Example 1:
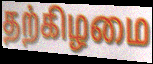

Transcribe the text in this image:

தற்கிழமை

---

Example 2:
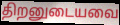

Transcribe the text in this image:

திறனுடையவை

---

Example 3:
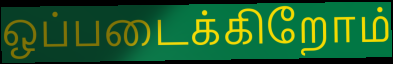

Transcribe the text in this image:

ஒப்படைக்கிறோம்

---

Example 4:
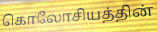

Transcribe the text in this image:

கொலோசியத்தின்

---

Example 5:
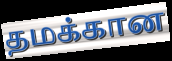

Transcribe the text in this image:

தமக்கான